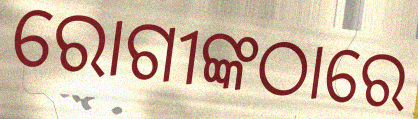
ରୋଗୀଙ୍କଠାରେ